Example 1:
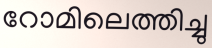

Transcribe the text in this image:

റോമിലെത്തിച്ചു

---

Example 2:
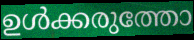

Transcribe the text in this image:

ഉൾക്കരുത്തോ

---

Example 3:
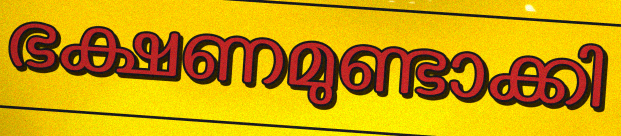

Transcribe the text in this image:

ഭക്ഷണമുണ്ടാക്കി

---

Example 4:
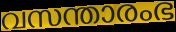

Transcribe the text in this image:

വസന്താരംഭ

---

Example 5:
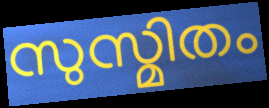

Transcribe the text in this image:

സുസ്മിതം